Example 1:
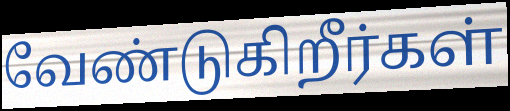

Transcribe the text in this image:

வேண்டுகிறீர்கள்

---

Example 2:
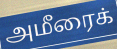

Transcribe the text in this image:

அமீரைக்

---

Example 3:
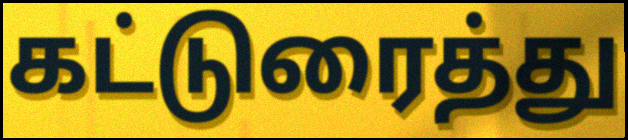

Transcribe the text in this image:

கட்டுரைத்து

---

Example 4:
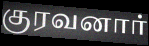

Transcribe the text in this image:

குரவனார்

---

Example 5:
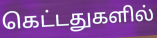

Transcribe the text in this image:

கெட்டதுகளில்